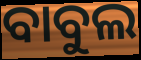
ବାବୁଲ